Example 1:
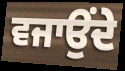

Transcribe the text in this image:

ਵਜਾਉਂਦੇ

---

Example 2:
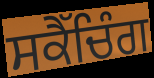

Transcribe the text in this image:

ਸਕੈੱਚਿੰਗ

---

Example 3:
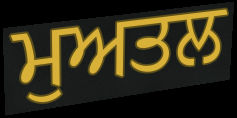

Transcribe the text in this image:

ਮੁਅਤਲ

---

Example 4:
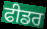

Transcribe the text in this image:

ਫੀਡਰ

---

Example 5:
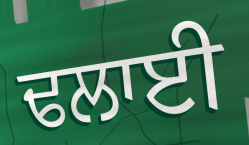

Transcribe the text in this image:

ਢਲਾਈ